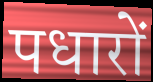
पधारों